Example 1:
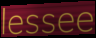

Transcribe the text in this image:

lessee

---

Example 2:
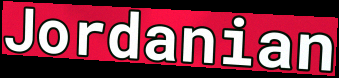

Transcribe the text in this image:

Jordanian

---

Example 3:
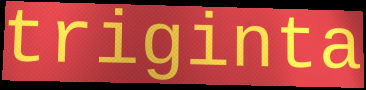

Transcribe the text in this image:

triginta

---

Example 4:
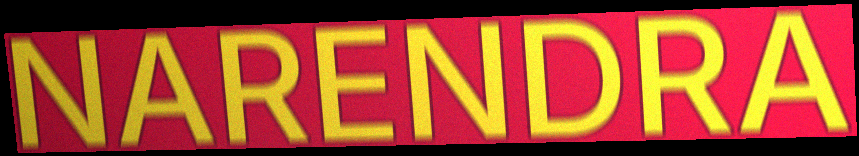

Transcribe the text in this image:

NARENDRA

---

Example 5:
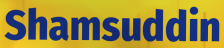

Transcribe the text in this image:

Shamsuddin